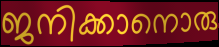
ജനിക്കാനൊരു